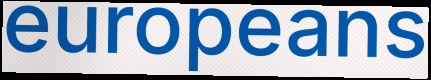
europeans